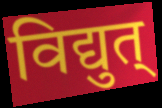
विद्युत्